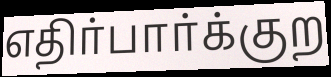
எதிர்பார்க்குற